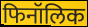
फिनॉलिक